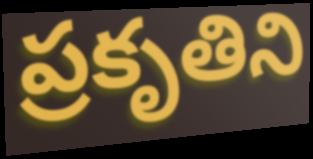
ప్రకృతిని